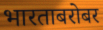
भारताबरोबर